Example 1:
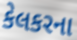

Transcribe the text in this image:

કેલકરના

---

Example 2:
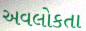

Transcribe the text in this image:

અવલોકતા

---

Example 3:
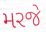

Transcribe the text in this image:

મરજે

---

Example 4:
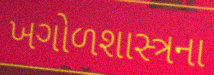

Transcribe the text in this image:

ખગોળશાસ્ત્રના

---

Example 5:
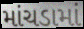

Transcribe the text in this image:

માંચડામાં